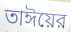
তাঈয়ের